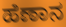
ಹೆಣಾನ